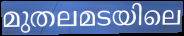
മുതലമടയിലെ